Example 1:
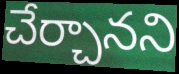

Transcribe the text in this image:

చేర్చానని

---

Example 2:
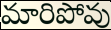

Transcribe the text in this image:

మారిపోవు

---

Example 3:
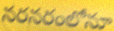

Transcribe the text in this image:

నరనరంలోనూ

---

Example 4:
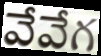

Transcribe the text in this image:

వేవేగ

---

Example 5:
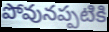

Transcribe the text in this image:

పోవునప్పటికి